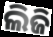
ଲିଜି